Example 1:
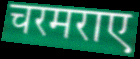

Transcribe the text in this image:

चरमराए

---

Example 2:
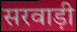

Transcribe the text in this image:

सरवाड़ी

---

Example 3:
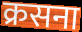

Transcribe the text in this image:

क्रसना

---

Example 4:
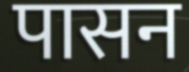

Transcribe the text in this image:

पासन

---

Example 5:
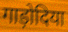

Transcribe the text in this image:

गाड़ोदिया